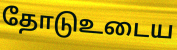
தோடுஉடைய